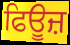
ਫਿਊਜ਼